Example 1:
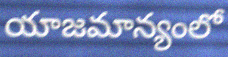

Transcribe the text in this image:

యాజమాన్యంలో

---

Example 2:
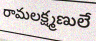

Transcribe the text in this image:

రామలక్ష్మణులే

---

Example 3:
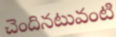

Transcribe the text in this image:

చెందినటువంటి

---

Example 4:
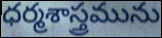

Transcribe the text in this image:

ధర్మశాస్త్రమును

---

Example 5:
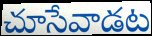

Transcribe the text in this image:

చూసేవాడట